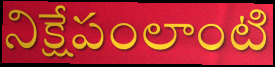
నిక్షేపంలాంటి